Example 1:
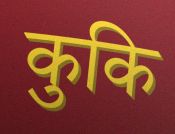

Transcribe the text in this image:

कुकि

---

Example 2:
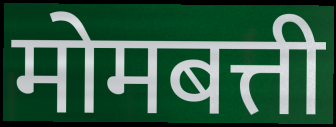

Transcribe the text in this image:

मोमबत्ती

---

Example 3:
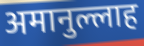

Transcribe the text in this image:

अमानुल्लाह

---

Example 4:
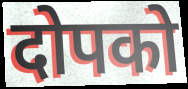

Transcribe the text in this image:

दोपको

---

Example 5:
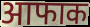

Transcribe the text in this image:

आफाक